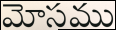
మోసము